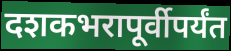
दशकभरापूर्वीपर्यंत